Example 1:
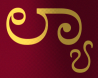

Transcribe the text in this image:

ಲ್ಯಾ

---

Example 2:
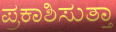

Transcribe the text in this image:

ಪ್ರಕಾಶಿಸುತ್ತಾ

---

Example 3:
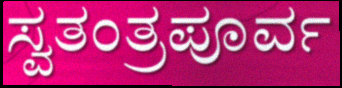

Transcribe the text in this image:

ಸ್ವತಂತ್ರಪೂರ್ವ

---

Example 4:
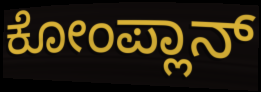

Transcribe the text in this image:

ಕೋಂಪ್ಲಾನ್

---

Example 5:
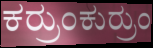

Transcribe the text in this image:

ಕರ್ರುಂಕುರ್ರುಂ